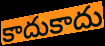
కాదుకాదు